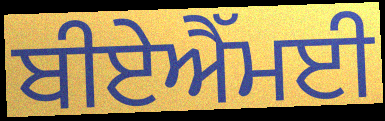
ਬੀਏਐੱਮਈ